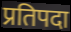
प्रतिपदा